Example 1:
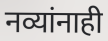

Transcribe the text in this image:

नव्यांनाही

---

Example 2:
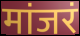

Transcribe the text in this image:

मांजरं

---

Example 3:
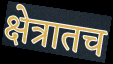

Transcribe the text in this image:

क्षेत्रातच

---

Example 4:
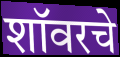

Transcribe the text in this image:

शॉवरचे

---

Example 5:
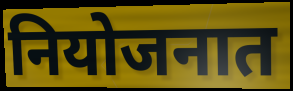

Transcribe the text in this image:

नियोजनात